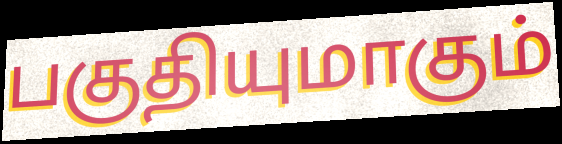
பகுதியுமாகும்